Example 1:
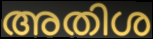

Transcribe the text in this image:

അതിശ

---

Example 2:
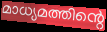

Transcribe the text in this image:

മാധ്യമത്തിന്റെ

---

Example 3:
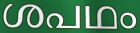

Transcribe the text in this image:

ശപഥം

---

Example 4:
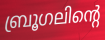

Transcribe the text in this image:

ബ്രൂഗലിന്റെ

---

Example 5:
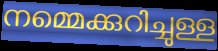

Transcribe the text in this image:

നമ്മെക്കുറിച്ചുള്ള